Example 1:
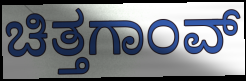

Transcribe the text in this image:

ಚಿತ್ತಗಾಂವ್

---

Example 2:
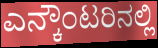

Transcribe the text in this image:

ಎನ್ಕೌಂಟರಿನಲ್ಲಿ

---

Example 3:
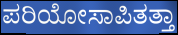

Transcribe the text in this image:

ಪರಿಯೋಸಾಪಿತತ್ತಾ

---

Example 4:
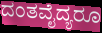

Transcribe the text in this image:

ದಂತವೈದ್ಯರೂ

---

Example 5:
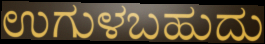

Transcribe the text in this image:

ಉಗುಳಬಹುದು